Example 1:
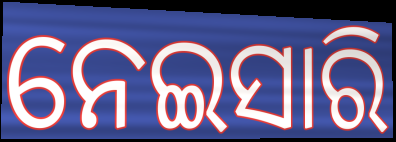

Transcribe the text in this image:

ନେଇସାରି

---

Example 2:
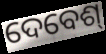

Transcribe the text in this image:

ଦେବେଶ୍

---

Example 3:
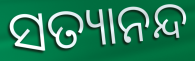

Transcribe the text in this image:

ସତ୍ୟାନନ୍ଦ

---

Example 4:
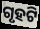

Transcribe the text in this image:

ଗୃହଟି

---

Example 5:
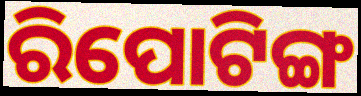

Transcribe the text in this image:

ରିପୋଟିଙ୍ଗ